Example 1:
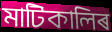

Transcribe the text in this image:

মাটিকালিৰ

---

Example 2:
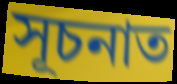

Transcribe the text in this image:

সূচনাত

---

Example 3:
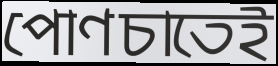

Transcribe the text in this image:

পোণচাতেই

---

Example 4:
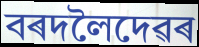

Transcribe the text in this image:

বৰদলৈদেৱৰ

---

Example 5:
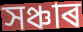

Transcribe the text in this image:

সঞ্চাৰ